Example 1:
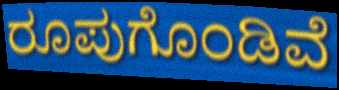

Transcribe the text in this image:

ರೂಪುಗೊಂಡಿವೆ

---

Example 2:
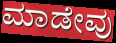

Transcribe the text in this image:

ಮಾಡೇವು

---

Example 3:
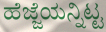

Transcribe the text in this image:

ಹೆಜ್ಜೆಯನ್ನಿಟ್ಟ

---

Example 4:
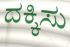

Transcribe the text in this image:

ದಕ್ಕಿಸು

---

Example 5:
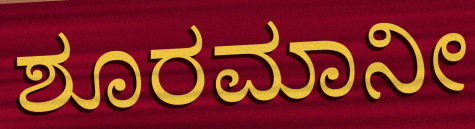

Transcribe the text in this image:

ಶೂರಮಾನೀ